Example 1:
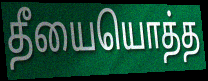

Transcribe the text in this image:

தீயையொத்த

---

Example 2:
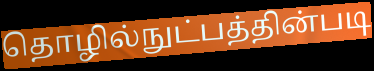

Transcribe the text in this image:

தொழில்நுட்பத்தின்படி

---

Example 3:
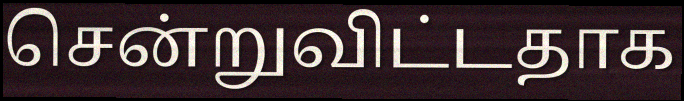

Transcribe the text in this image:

சென்றுவிட்டதாக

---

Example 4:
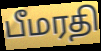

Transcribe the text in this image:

பீமரதி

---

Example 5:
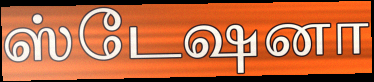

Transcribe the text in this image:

ஸ்டேஷனா